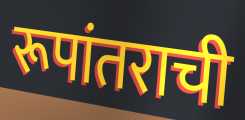
रूपांतराची